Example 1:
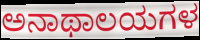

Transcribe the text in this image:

ಅನಾಥಾಲಯಗಳ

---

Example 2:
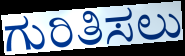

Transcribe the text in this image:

ಗುರಿತಿಸಲು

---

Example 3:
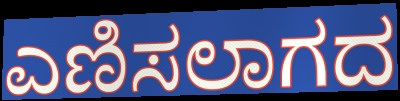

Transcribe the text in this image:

ಎಣಿಸಲಾಗದ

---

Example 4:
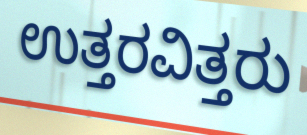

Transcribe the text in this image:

ಉತ್ತರವಿತ್ತರು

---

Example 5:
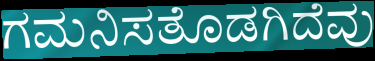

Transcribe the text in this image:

ಗಮನಿಸತೊಡಗಿದೆವು